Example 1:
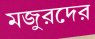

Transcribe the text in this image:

মজুরদের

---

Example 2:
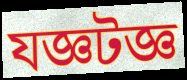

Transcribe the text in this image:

যজ্ঞটজ্ঞ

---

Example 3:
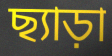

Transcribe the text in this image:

ছ্যাড়া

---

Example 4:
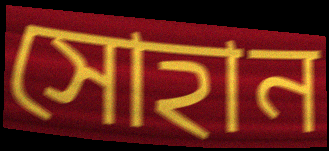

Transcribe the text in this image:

সোহান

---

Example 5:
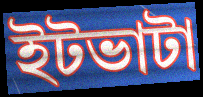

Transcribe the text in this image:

ইটভাটা